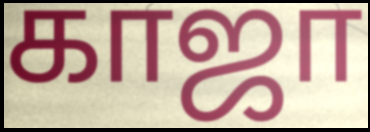
காஜா